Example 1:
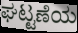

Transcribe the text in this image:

ಘಟ್ಟಣೆಯ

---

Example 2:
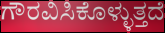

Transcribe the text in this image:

ಗೌರವಿಸಿಕೊಳ್ಳುತ್ತದೆ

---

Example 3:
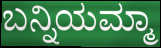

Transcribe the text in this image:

ಬನ್ನಿಯಮ್ಮಾ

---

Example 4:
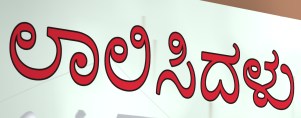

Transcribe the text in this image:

ಲಾಲಿಸಿದಳು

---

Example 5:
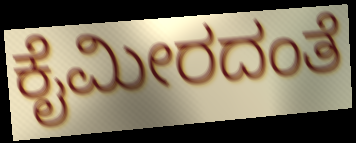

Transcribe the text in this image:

ಕೈಮೀರದಂತೆ